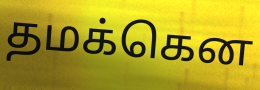
தமக்கென